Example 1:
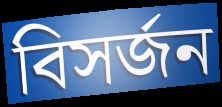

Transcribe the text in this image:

বিসর্জন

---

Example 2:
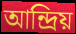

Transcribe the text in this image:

আন্দ্রিয়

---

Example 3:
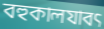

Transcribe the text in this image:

বহুকালযাবৎ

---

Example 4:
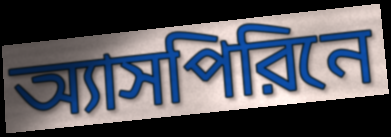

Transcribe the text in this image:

অ্যাসপিরিনে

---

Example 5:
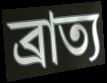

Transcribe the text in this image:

ব্রাত্য